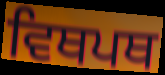
ਵਿਥਪਥ